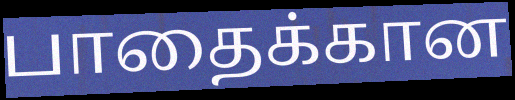
பாதைக்கான